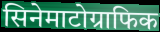
सिनेमाटोग्राफिक